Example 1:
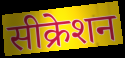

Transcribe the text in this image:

सीक्रेशन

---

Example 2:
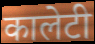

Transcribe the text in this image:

कालेटी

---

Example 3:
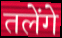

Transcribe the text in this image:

तलेंगे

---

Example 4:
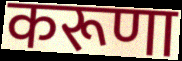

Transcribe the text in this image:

करूणा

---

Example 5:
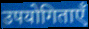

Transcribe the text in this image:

उपयोगिताएँ